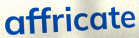
affricate